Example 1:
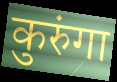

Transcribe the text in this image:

कुरुंगा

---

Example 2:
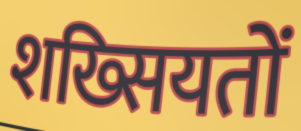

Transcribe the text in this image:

शख्सियतों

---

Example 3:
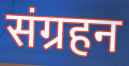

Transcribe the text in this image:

संग्रहन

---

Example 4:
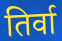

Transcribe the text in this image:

तिर्वा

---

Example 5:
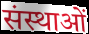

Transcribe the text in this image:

संस्‍थाओं